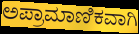
ಅಪ್ರಾಮಾಣಿಕವಾಗಿ